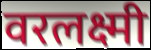
वरलक्ष्‍मी